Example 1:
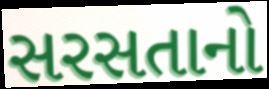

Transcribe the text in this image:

સરસતાનો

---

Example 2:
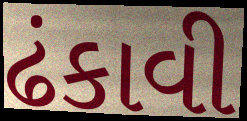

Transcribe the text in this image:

ઢંકાવી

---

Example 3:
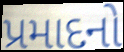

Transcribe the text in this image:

પ્રમાદનો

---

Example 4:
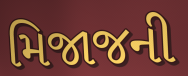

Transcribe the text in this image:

મિજાજની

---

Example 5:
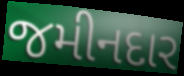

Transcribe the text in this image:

જમીનદાર